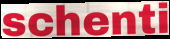
schenti